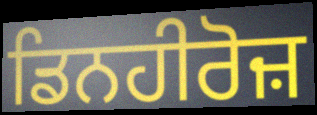
ਡਿਨਹੀਰੋਜ਼